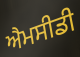
ਐਮਸੀਡੀ